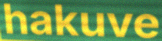
hakuve